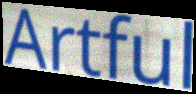
Artful